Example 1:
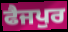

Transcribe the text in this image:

ਫੈਜਪੁਰ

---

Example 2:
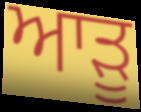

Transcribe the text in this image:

ਆੜੂ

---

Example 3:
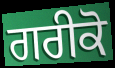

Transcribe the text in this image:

ਗਰੀਕੋ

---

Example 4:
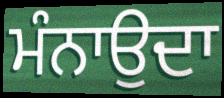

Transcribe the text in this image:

ਮੰਨਾਉਦਾ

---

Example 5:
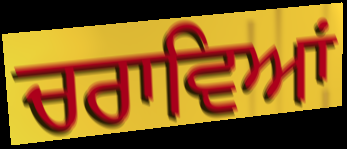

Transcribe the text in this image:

ਚਰਾਵਿਆਂ